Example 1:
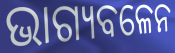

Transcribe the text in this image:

ଭାଗ୍ୟବଳେନ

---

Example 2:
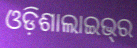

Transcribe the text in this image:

ଓଡ଼ିଶାଲାଇଭ୍‌ର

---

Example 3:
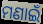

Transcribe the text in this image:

ମଣାଇଁ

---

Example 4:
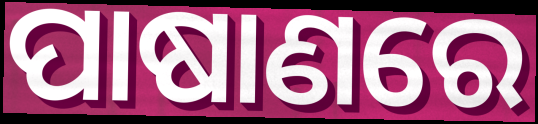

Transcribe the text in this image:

ପାଷାଣରେ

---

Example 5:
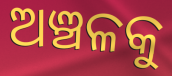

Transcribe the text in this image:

ଅଞ୍ଚଳକୁ